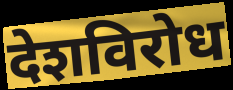
देशविरोध